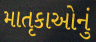
માતૃકાઓનું